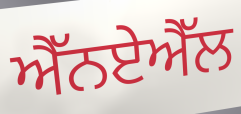
ਐੱਨਏਐੱਲ